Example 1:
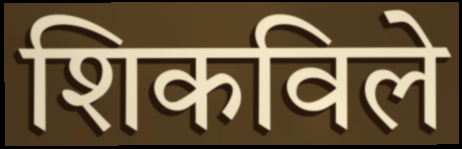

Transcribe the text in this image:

शिकविले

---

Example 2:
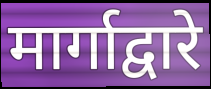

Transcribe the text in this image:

मार्गाद्वारे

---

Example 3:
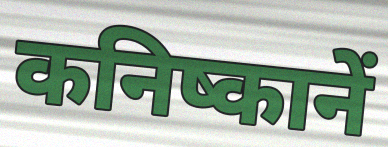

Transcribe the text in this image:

कनिष्कानें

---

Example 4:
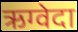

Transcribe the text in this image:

ऋग्वेदा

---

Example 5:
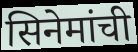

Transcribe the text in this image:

सिनेमांची